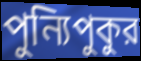
পুন্যিপুকুর